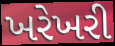
ખરેખરી